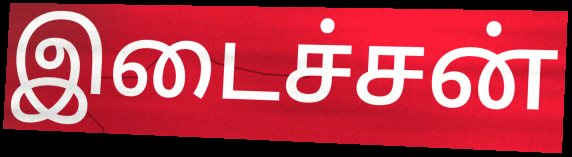
இடைச்சன்